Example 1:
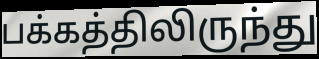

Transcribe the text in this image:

பக்கத்திலிருந்து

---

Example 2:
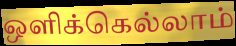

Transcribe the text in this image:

ஒளிக்கெல்லாம்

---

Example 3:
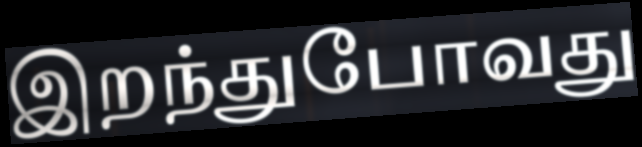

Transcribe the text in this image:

இறந்துபோவது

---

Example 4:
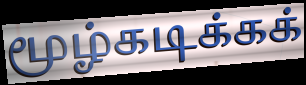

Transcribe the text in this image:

மூழ்கடிக்கக்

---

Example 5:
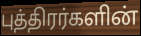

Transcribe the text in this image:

புத்திரர்களின்